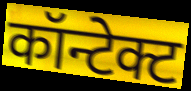
कॉन्टेक्ट